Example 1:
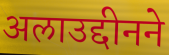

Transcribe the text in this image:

अलाउद्दीनने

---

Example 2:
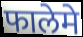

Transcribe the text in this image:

फालेमे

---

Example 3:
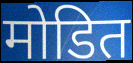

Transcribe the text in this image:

मोडित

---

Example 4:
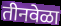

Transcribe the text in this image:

तीनवेळा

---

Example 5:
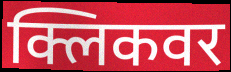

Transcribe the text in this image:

क्लिकवर